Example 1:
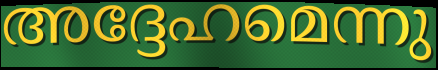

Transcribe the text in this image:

അദ്ദേഹമെന്നു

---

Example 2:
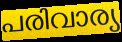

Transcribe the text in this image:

പരിവാര്യ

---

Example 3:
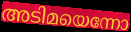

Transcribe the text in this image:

അടിമയെന്നോ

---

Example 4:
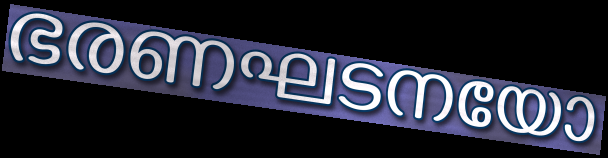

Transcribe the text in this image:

ഭരണഘടനയോ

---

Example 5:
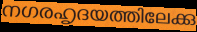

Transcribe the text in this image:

നഗരഹൃദയത്തിലേക്കു